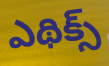
ఎథిక్స్